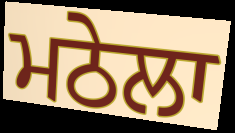
ਮਠੇਲਾ